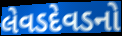
લેવડદેવડનો